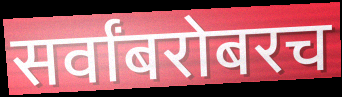
सर्वांबरोबरच